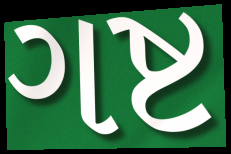
ગષ્ટ